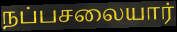
நப்பசலையார்